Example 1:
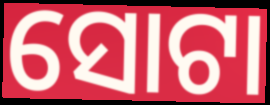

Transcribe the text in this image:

ସୋଟା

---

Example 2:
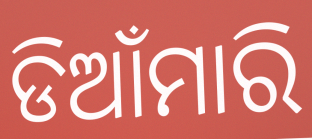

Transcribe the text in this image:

ଡିଆଁମାରି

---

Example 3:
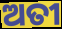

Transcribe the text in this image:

ଅତୀ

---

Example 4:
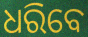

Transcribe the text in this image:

ଧରିବେ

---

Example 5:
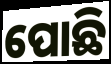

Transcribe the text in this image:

ପୋଛି